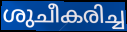
ശുചീകരിച്ച